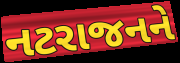
નટરાજનને